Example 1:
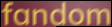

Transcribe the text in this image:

fandom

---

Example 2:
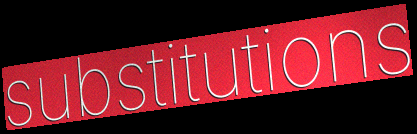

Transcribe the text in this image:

substitutions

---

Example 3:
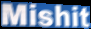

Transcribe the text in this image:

Mishit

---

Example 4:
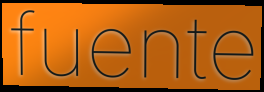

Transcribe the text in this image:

fuente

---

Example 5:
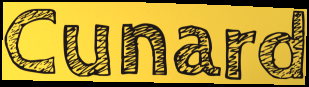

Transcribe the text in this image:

Cunard